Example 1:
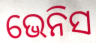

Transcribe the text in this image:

ଭେନିସ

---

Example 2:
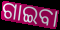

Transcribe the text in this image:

ଗାଇବା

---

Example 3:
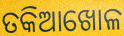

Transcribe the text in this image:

ତକିଆଖୋଳ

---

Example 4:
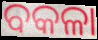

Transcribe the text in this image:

ବକଳା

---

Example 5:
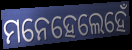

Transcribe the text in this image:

ମନେହେଲେହେଁ